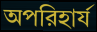
অপরিহার্য